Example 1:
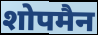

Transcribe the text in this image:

शोपमैन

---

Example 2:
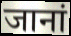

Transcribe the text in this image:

जानां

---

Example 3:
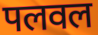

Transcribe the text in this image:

पलवल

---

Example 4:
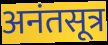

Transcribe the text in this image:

अनंतसूत्र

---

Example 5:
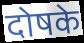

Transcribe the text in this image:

दोषके